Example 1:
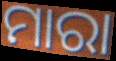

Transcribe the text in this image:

ମାରା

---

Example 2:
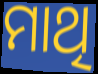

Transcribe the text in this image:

ମାଥି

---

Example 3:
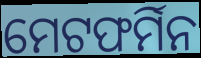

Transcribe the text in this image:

ମେଟଫର୍ମିନ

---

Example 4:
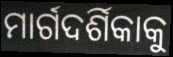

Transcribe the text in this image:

ମାର୍ଗଦର୍ଶିକାକୁ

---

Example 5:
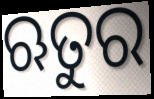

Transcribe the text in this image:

ଋତୁର